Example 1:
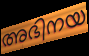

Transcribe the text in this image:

അഭിനയ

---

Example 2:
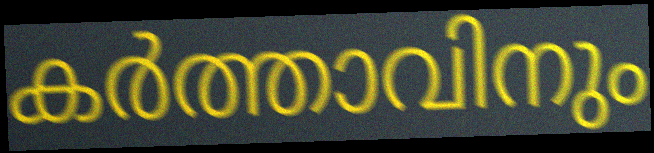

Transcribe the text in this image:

കർത്താവിനും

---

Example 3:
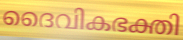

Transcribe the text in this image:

ദൈവികഭക്തി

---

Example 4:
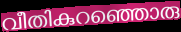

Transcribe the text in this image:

വീതികുറഞ്ഞൊരു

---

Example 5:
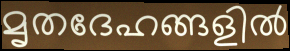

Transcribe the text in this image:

മൃതദേഹങ്ങളിൽ